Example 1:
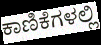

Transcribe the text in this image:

ಕಾಣಿಕೆಗಳಲ್ಲಿ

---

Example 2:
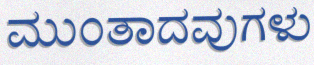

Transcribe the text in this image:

ಮುಂತಾದವುಗಳು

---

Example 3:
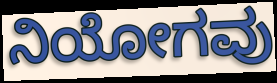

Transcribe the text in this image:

ನಿಯೋಗವು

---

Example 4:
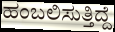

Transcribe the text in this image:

ಹಂಬಲಿಸುತ್ತಿದ್ದೆ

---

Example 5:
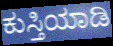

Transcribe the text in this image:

ಕುಸ್ತಿಯಾಡಿ